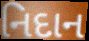
નિદાન